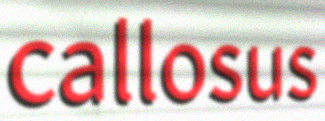
callosus